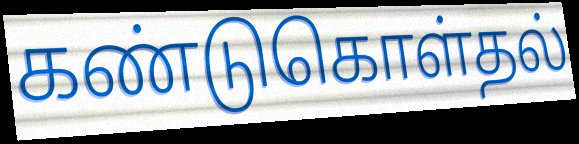
கண்டுகொள்தல்